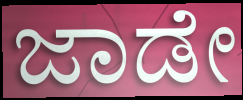
ಜಾಡೇ